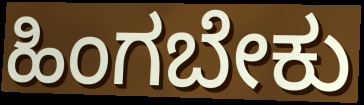
ಹಿಂಗಬೇಕು